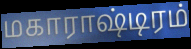
மகாராஷ்டிரம்